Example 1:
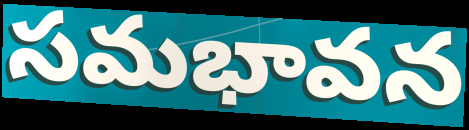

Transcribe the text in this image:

సమభావన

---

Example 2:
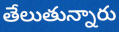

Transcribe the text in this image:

తేలుతున్నారు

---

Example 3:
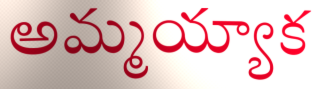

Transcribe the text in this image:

అమ్మయ్యాక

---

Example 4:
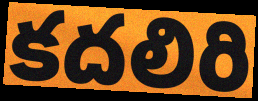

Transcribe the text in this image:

కదలిరి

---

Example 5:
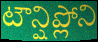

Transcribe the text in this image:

టౌన్షిప్లోని